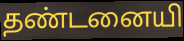
தண்டனையி